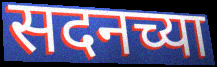
सदनच्या